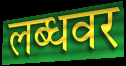
लब्धवर